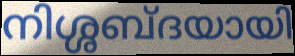
നിശ്ശബ്ദയായി